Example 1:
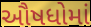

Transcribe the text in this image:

ઔષધોમાં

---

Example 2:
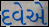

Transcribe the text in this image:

દવેએ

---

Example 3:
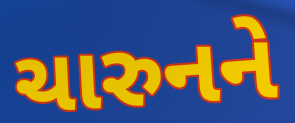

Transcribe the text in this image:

ચારુનને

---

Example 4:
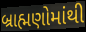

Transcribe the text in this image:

બ્રાહ્મણોમાંથી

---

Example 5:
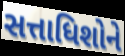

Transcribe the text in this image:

સત્તાધિશોને